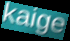
kaige